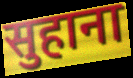
सुहाना